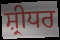
ਸ਼੍ਰੀਧਰ